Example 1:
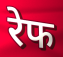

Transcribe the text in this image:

रेफ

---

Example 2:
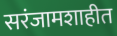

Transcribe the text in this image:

सरंजामशाहीत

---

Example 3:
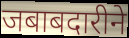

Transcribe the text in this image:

जबाबदारीने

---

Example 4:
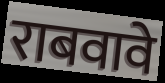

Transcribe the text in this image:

राबवावे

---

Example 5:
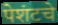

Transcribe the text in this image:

पेशंटचे